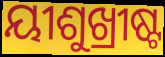
ୟୀଶୁଖ୍ରୀଷ୍ଟ